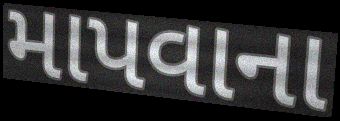
માપવાના